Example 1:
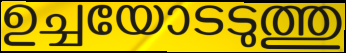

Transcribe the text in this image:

ഉച്ചയോടടുത്തു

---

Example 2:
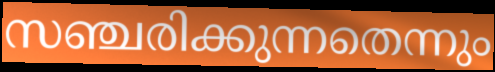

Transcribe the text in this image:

സഞ്ചരിക്കുന്നതെന്നും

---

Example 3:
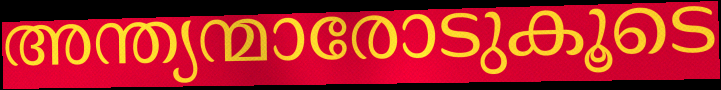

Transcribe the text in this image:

അന്ത്യന്മാരോടുകൂടെ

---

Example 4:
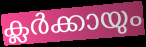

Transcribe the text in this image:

ക്ലർക്കായും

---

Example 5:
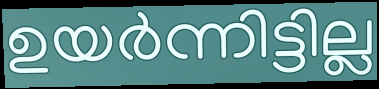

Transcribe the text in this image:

ഉയർന്നിട്ടില്ല